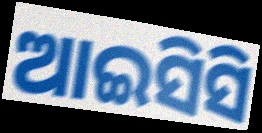
ଆଇସିସି